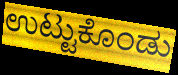
ಉಟ್ಟುಕೊಂಡು